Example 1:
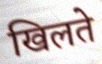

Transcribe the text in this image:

खिलते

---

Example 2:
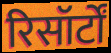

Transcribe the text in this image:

रिसॉर्टों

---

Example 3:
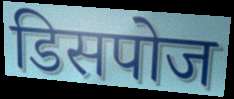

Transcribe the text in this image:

डिसपोज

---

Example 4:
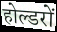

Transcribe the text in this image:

होल्डरों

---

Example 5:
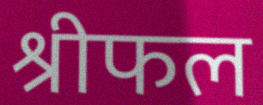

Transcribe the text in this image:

श्रीफल